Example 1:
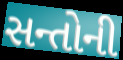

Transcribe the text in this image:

સન્તોની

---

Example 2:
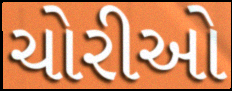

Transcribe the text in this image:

ચોરીઓ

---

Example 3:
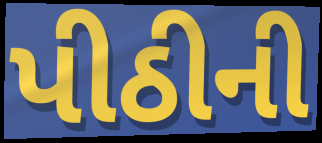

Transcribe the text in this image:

પીઠીની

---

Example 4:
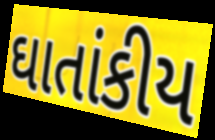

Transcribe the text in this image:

ઘાતાંકીય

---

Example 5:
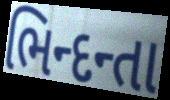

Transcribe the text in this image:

ભિન્દન્તા